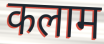
कलाम